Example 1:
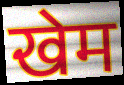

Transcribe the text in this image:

खेम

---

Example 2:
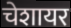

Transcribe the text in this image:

चेशायर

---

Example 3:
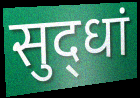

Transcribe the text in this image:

सुद्धां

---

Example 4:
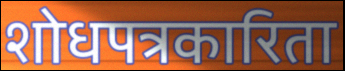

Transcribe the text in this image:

शोधपत्रकारिता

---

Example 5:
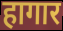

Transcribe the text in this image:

हागार